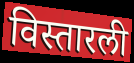
विस्तारली